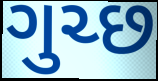
ગુચ્છ